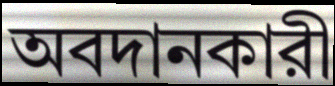
অবদানকারী